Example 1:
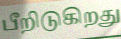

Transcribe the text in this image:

பீறிடுகிறது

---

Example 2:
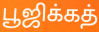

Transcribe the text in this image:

பூஜிக்கத்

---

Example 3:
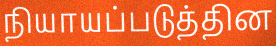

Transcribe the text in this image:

நியாயப்படுத்தின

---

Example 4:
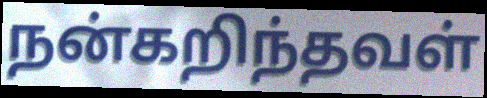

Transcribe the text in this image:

நன்கறிந்தவள்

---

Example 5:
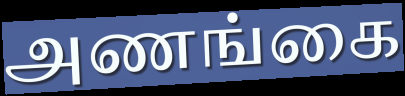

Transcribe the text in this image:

அணங்கை